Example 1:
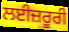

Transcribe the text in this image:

ਲਈਜ਼ਰੂਰੀ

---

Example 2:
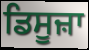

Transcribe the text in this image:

ਡਿਸੂਜ਼ਾ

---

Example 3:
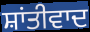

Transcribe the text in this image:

ਸ਼ਾਂਤੀਵਾਦ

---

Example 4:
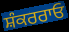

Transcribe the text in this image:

ਸ਼ੰਕਰਰਾਓ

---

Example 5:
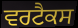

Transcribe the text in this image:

ਵਰਟੈਕਸ